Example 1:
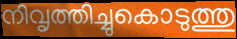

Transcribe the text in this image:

നിവൃത്തിച്ചുകൊടുത്തു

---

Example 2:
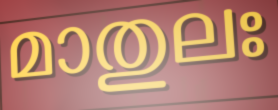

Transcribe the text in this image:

മാതുലഃ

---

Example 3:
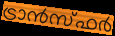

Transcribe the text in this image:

ട്രാൻസ്ഫർ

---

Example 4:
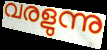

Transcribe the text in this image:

വരളുന്നു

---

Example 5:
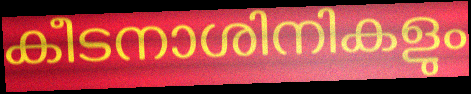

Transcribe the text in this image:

കീടനാശിനികളും